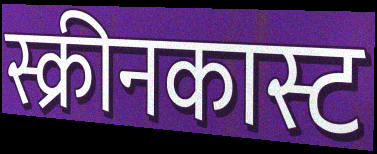
स्क्रीनकास्ट